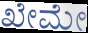
ಖೇಮೇ